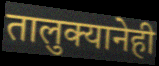
तालुक्यानेही